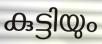
കുട്ടിയും